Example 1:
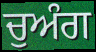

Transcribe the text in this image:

ਚੁਅੰਗ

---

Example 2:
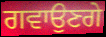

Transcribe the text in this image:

ਗਵਾਉਣਗੇ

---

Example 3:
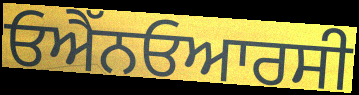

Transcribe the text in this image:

ਓਐੱਨਓਆਰਸੀ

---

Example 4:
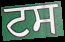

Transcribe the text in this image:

ਟਸ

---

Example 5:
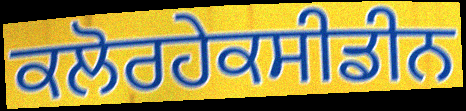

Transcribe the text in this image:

ਕਲੋਰਹੇਕਸੀਡੀਨ